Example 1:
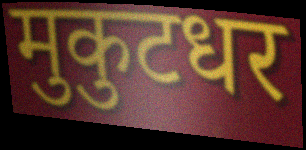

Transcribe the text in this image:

मुकुटधर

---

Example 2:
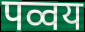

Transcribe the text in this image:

पव्वय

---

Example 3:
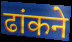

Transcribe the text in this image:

ढांकने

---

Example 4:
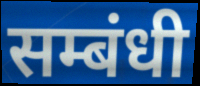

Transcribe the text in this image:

सम्बंधी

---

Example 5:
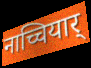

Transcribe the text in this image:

नाच्चियार्